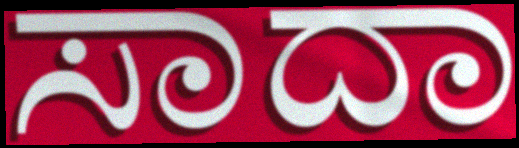
ಸಾದಾ